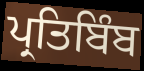
ਪ੍ਰਤਿਬਿੰਬ